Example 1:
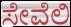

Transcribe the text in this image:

ಸೇವೆಲಿ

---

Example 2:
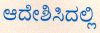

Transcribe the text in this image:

ಆದೇಶಿಸಿದಲ್ಲಿ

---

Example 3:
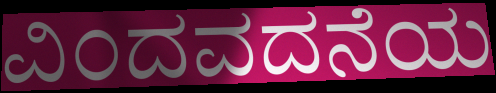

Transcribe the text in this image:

ವಿಂದವದನೆಯ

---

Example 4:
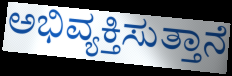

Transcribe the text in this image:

ಅಭಿವ್ಯಕ್ತಿಸುತ್ತಾನೆ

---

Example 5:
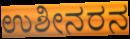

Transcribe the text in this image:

ಉಶೀನರನ